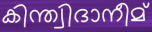
കിന്ത്വിദാനീമ്